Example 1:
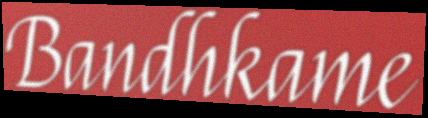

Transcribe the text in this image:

Bandhkame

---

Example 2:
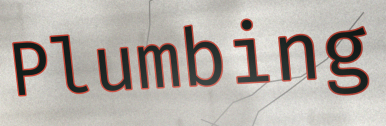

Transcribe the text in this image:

Plumbing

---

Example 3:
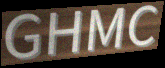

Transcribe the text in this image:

GHMC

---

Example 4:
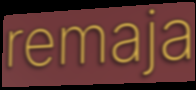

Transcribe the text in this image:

remaja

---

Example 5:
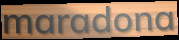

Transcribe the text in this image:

maradona